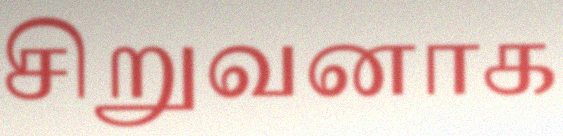
சிறுவனாக